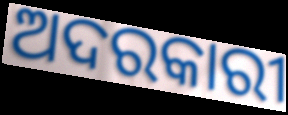
ଅଦରକାରୀ